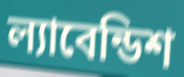
ল্যাবেন্ডিশ